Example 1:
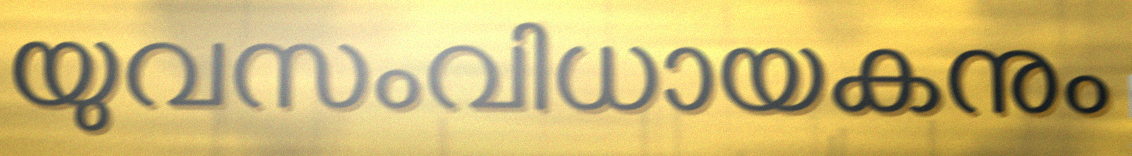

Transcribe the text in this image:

യുവസംവിധായകനും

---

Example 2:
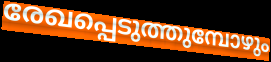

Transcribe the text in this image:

രേഖപ്പെടുത്തുമ്പോഴും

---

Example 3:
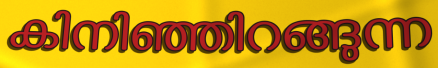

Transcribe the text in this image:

കിനിഞ്ഞിറങ്ങുന്ന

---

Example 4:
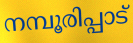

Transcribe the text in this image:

നമ്പൂരിപ്പാട്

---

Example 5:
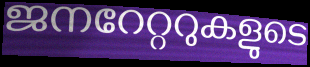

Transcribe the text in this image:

ജനറേറ്ററുകളുടെ